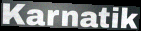
Karnatik